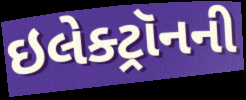
ઇલેક્ટ્રૉનની